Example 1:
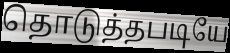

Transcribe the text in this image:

தொடுத்தபடியே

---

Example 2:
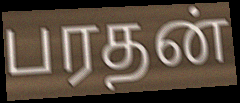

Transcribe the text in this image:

பரதன்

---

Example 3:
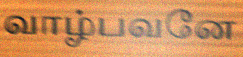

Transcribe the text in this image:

வாழ்பவனே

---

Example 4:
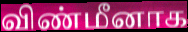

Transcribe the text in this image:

விண்மீனாக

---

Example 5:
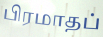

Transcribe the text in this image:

பிரமாதப்